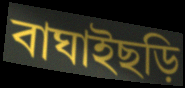
বাঘাইছড়ি